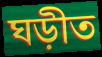
ঘড়ীত